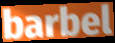
barbel